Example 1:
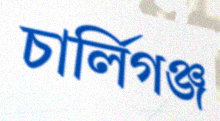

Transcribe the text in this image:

চার্লিগঞ্জ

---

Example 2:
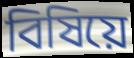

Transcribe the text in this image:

বিষিয়ে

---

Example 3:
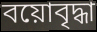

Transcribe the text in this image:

বয়োবৃদ্ধা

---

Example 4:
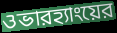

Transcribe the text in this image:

ওভারহ্যাংয়ের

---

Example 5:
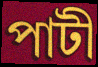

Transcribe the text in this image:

পাটী